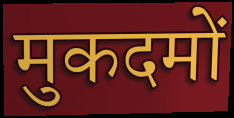
मुकदमों